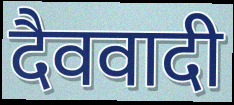
दैववादी